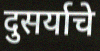
दुसर्याचे